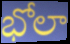
భోలా